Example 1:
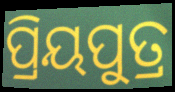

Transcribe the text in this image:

ପ୍ରିୟପୁତ୍ର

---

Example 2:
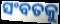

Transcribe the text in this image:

ସଂବତକୁ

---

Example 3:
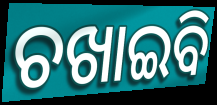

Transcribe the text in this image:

ଚଖାଇବି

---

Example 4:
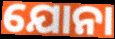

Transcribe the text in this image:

ଯୋନା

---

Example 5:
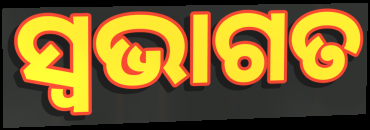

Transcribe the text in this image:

ସ୍ଵଭାଗତ